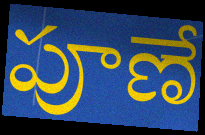
పూణే